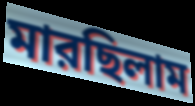
মারছিলাম